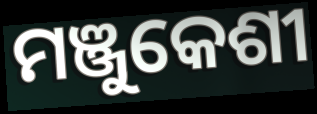
ମଞ୍ଜୁକେଶୀ